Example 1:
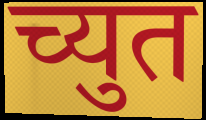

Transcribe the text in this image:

च्‍युत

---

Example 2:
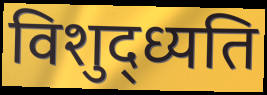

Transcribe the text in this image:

विशुद्ध्यति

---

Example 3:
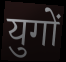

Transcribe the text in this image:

युगों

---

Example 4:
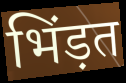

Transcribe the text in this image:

भिंड़त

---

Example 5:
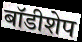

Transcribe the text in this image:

बॉडीशेप